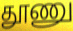
தூணு